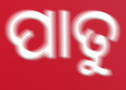
ପାତୁ